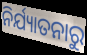
ନିର୍ଯ୍ୟାତନାରୁ